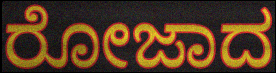
ರೋಜಾದ